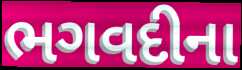
ભગવદીના